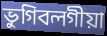
ভুগিবলগীয়া